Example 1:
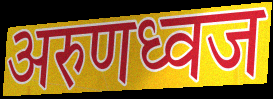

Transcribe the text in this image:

अरुणध्वज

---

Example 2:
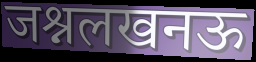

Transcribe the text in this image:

जश्नलखनऊ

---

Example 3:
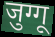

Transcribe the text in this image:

जुग्गू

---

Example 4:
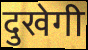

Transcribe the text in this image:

दुखेगी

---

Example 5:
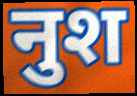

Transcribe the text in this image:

नुश